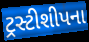
ટ્રસ્ટીશીપના